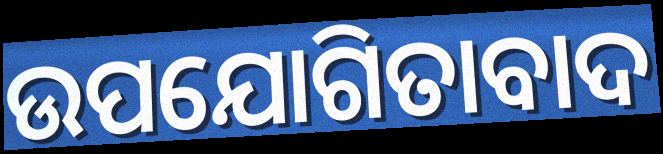
ଉପଯୋଗିତାବାଦ